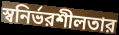
স্বনির্ভরশীলতার